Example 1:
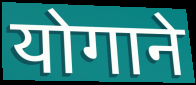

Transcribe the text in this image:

योगाने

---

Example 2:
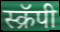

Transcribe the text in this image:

स्क्रॅपी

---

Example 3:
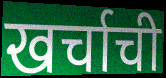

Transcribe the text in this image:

खर्चाची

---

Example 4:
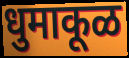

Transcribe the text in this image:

धुमाकूळ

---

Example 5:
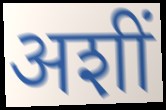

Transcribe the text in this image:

अशीं